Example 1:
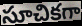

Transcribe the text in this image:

సూచికగా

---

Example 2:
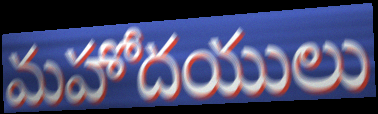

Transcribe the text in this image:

మహోదయులు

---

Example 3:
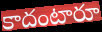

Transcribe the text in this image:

కాదంటారూ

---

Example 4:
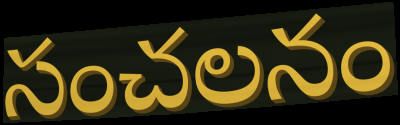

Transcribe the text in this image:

సంచలనం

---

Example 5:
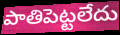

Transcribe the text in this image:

పాతిపెట్టలేదు